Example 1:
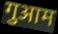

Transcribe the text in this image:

गुआम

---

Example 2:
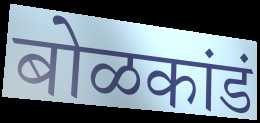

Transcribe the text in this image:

बोळकांडं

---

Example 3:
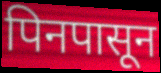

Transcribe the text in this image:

पिनपासून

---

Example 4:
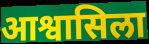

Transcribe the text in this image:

आश्वासिला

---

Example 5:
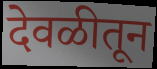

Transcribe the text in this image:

देवळीतून